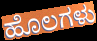
ಹೊಲಗಳು